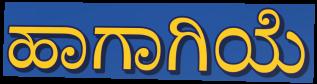
ಹಾಗಾಗಿಯೆ